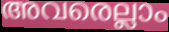
അവരെല്ലാം